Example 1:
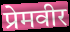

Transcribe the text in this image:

प्रेमवीर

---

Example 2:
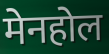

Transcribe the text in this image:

मेनहोल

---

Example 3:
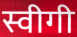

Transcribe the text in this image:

स्वीगी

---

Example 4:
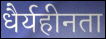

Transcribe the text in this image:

धैर्यहीनता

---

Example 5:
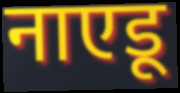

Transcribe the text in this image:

नाएडू